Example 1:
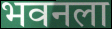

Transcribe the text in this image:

भवनला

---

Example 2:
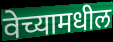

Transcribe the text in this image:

वेच्यामधील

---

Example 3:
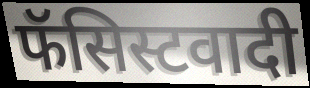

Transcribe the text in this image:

फॅसिस्टवादी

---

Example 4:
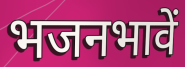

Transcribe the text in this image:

भजनभावें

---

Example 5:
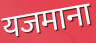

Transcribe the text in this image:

यजमाना